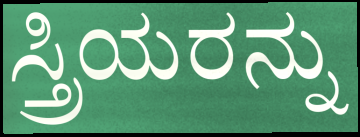
ಸ್ತ್ರಿಯರನ್ನು